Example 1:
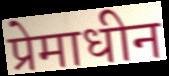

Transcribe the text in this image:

प्रेमाधीन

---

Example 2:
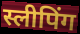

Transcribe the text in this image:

स्लीपिंग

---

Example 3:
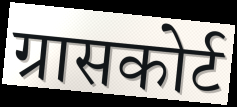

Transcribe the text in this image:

ग्रासकोर्ट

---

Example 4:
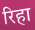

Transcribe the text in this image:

रिहा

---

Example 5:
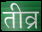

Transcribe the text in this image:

तीव्र